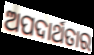
ଅପଦାର୍ଥତାର